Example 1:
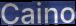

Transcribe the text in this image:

Caino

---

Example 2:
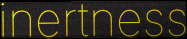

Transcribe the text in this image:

inertness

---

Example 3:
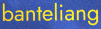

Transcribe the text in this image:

banteliang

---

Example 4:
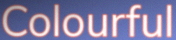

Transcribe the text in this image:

Colourful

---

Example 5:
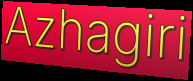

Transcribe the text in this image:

Azhagiri